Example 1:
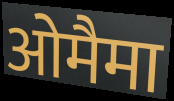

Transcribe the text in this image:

ओमैमा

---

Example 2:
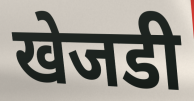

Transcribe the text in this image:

खेजडी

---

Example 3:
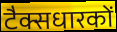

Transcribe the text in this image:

टैक्सधारकों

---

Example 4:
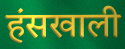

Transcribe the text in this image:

हंसखाली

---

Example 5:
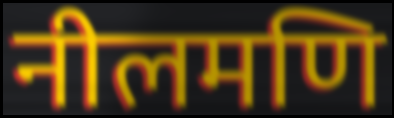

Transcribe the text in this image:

नीलमणि